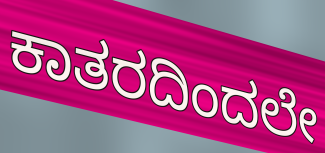
ಕಾತರದಿಂದಲೇ